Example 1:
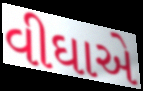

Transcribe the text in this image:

વીઘાએ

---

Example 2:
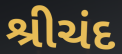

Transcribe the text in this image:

શ્રીચંદ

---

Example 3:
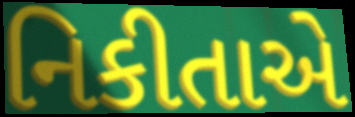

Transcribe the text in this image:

નિકીતાએ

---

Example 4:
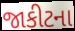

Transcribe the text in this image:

જાકીટના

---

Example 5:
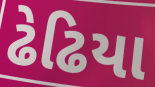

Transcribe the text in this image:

ઢેઢિયા